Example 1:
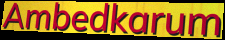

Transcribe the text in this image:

Ambedkarum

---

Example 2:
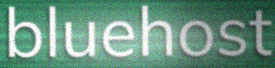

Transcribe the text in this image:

bluehost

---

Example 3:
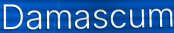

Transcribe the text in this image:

Damascum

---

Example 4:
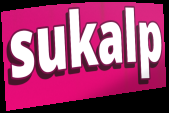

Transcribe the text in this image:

sukalp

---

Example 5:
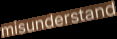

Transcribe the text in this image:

misunderstand